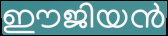
ഈജിയൻ